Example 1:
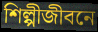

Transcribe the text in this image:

শিল্পীজীবনে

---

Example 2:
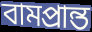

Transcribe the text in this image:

বামপ্রান্ত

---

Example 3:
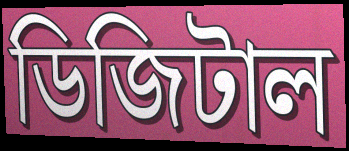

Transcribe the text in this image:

ডিজিটাল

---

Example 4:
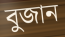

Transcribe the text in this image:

বুজান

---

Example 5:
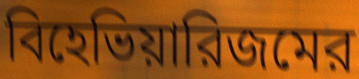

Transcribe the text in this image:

বিহেভিয়ারিজমের